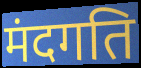
मंदगति